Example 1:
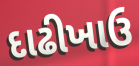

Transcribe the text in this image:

દાઢીખાઉ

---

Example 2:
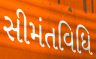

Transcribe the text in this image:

સીમંતવિધિ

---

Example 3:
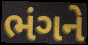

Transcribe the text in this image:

ભંગને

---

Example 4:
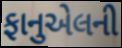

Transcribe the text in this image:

ફાનુએલની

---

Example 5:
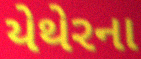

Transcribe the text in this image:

યેથેરના